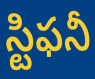
స్టిఫనీ